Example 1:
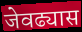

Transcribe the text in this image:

जेवढ्यास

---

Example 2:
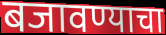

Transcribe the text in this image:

बजावण्याचा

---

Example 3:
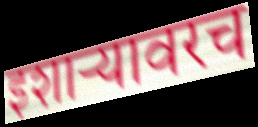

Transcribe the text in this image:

इशाऱ्यावरच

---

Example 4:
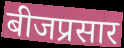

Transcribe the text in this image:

बीजप्रसार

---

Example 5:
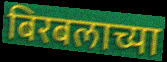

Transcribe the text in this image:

बिरबलाच्या